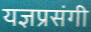
यज्ञप्रसंगी